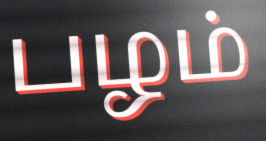
பழம்